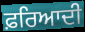
ਫ਼ਰਿਆਦੀ